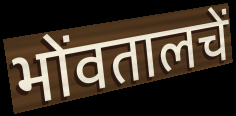
भोंवतालचें